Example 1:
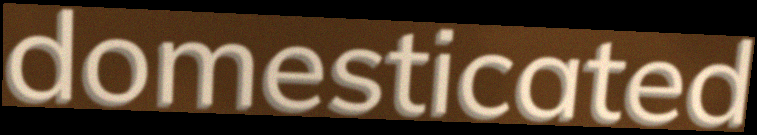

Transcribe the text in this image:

domesticated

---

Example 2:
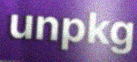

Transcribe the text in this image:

unpkg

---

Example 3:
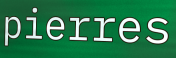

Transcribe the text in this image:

pierres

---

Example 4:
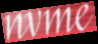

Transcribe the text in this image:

nvme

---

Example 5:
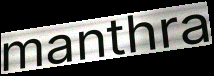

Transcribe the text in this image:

manthra